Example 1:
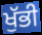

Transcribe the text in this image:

ਖੁੱਭੀ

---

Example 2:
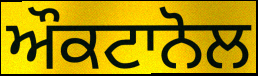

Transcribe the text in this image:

ਔਕਟਾਨੋਲ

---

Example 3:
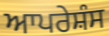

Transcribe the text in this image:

ਆਪਰੇਸ਼ੰਸ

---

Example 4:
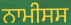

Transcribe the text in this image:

ਨਾਮੀਸਸ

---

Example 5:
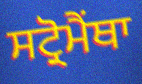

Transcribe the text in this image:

ਸਟ੍ਰੋਮੈਂਥਾ